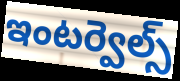
ఇంటర్వెల్స్